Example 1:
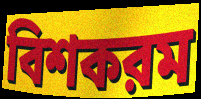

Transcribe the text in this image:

বিশকরম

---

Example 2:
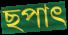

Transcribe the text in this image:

ছপাৎ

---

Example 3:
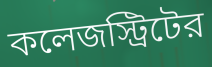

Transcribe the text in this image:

কলেজস্ট্রিটের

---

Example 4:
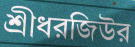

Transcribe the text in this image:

শ্রীধরজিউর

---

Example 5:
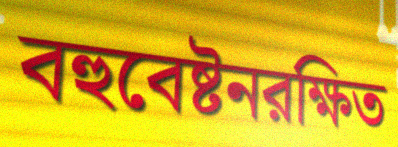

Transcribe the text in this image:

বহুবেষ্টনরক্ষিত